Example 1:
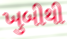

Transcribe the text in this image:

ખુબીથી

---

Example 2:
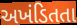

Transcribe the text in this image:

અખંડિતતા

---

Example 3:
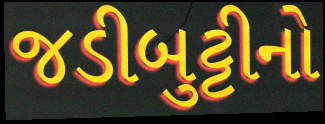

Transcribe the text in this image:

જડીબુટ્ટીનો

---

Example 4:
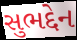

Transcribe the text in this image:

સુભદ્દેન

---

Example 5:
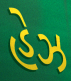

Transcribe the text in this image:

હેઝ